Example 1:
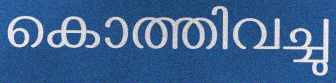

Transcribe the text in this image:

കൊത്തിവച്ചു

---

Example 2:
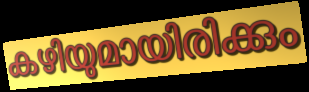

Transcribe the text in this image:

കഴിയുമായിരിക്കും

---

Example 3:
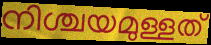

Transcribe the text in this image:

നിശ്ചയമുള്ളത്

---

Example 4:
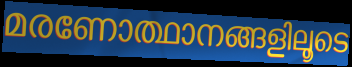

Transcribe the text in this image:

മരണോത്ഥാനങ്ങളിലൂടെ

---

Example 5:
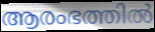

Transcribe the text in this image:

ആരംഭത്തിൽ